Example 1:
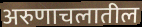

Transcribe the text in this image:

अरुणाचलातील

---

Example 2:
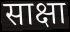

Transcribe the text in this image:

साक्षा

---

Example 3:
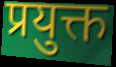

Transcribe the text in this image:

प्रयुक्त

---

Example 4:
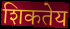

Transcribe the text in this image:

शिकतेय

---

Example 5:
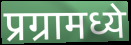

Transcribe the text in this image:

प्रग्रामध्ये